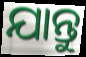
ଯାନ୍ତୁ